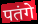
पतंगे